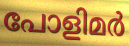
പോളിമർ